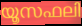
യൂസഫലി